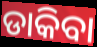
ଡାକିବା